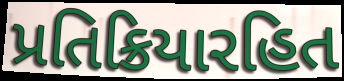
પ્રતિક્રિયારહિત